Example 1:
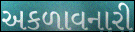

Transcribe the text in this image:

અકળાવનારી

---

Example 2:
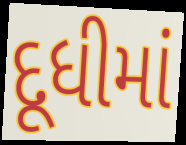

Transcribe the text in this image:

દૂધીમાં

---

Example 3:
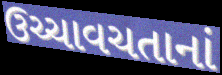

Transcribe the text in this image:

ઉચ્ચાવચતાનાં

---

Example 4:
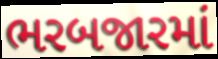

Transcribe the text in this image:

ભરબજારમાં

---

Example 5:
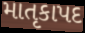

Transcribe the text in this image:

માતૃકાપદ